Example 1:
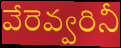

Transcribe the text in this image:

వేరెవ్వరినీ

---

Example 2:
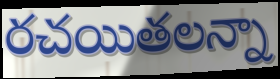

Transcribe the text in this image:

రచయితలన్నా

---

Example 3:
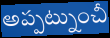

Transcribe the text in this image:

అప్పట్నుంచీ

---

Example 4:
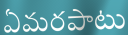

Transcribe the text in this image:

ఏమరపాటు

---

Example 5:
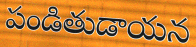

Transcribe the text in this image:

పండితుడాయన